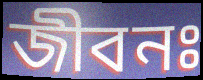
জীবনঃ